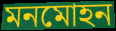
মনমোহন